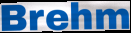
Brehm